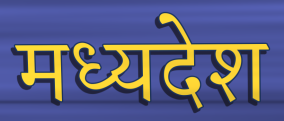
मध्यदेश